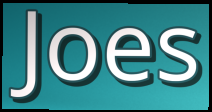
Joes